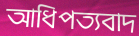
আধিপত্যবাদ